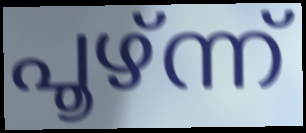
പൂഴ്ന്ന്